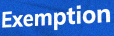
Exemption